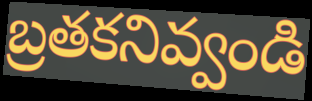
బ్రతకనివ్వండి